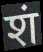
शं